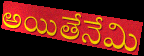
అయితేనేమి